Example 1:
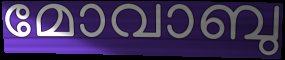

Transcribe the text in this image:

മോവാബു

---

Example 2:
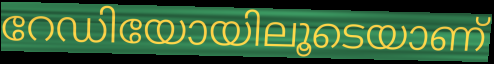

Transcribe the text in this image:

റേഡിയോയിലൂടെയാണ്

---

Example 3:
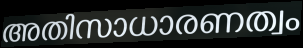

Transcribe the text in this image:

അതിസാധാരണത്വം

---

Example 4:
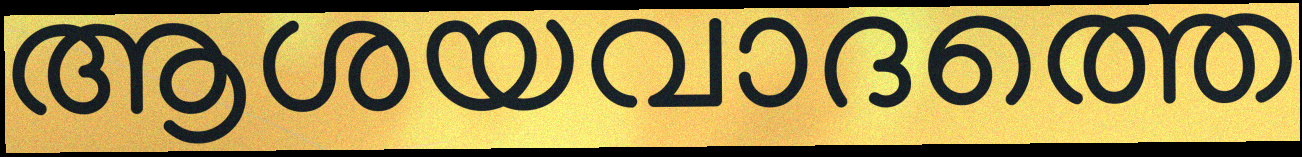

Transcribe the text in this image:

ആശയവാദത്തെ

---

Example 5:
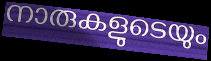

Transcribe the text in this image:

നാരുകളുടെയും